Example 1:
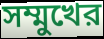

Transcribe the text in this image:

সম্মুখের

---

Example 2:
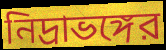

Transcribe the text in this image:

নিদ্রাভঙ্গের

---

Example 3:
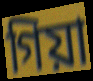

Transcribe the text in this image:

গিয়া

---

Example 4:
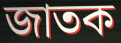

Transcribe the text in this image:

জাতক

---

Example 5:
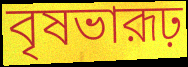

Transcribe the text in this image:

বৃষভারূঢ়